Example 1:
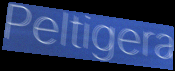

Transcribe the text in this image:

Peltigera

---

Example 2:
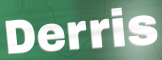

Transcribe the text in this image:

Derris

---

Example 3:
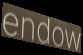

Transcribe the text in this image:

endow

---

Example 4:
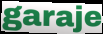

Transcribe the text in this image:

garaje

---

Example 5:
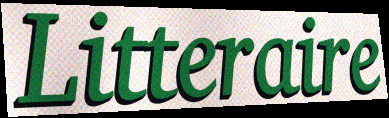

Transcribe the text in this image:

Litteraire